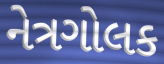
નેત્રગોલક